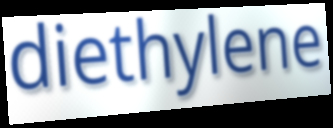
diethylene